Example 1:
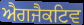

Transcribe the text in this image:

ਐਗਜੈਕਟਿਵ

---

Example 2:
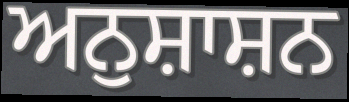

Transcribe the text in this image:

ਅਨੁਸ਼ਾਸ਼ਨ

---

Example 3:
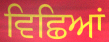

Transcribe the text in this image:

ਵਿਛਿਆਂ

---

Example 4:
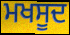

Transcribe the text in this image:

ਮਖਸੂਦ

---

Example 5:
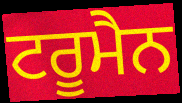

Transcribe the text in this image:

ਟਰੂਮੈਨ